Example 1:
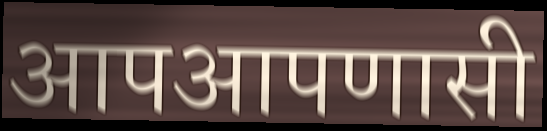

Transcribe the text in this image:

आपआपणासी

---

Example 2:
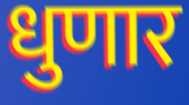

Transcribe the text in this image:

धुणार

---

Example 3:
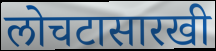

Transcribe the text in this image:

लोचटासारखी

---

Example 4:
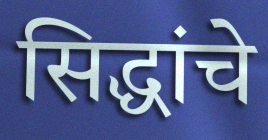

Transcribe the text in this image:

सिद्धांचे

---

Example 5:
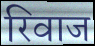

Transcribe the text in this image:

रिवाज